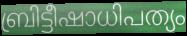
ബ്രിട്ടീഷാധിപത്യം